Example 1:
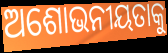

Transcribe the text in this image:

ଅଶୋଭନୀୟତାକୁ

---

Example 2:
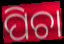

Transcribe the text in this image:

ପିଚା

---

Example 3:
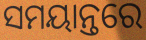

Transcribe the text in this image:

ସମୟାନ୍ତରେ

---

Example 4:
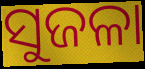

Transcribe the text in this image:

ସୁଜଳା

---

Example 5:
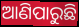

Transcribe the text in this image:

ଆଣିପାରୁଛି